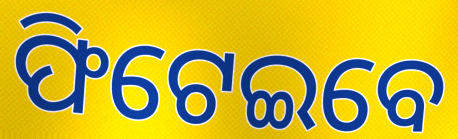
ଫିଟେଇବେ